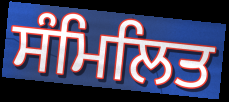
ਸੰਮਿਲਿਤ